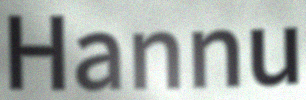
Hannu